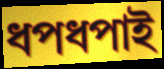
ধপধপাই